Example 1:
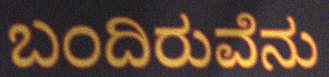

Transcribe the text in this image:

ಬಂದಿರುವೆನು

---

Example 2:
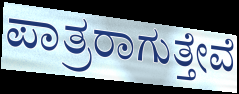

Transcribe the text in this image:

ಪಾತ್ರರಾಗುತ್ತೇವೆ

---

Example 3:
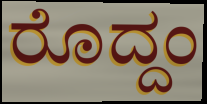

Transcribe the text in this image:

ರೊದ್ದಂ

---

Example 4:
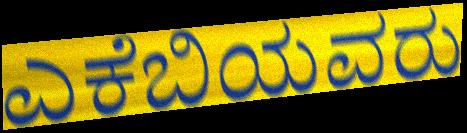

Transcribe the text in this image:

ಎಕೆಬಿಯವರು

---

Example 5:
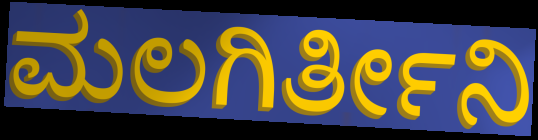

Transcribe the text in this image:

ಮಲಗಿರ್ತೀನಿ